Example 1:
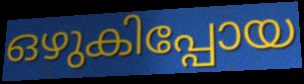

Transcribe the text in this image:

ഒഴുകിപ്പോയ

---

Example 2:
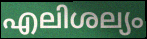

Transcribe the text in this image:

എലിശല്യം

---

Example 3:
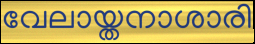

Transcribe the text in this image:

വേലായ്തനാശാരി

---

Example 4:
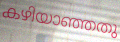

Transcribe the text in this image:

കഴിയാഞ്ഞതു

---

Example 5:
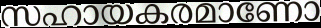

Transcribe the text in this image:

സഹായകരമാണോ